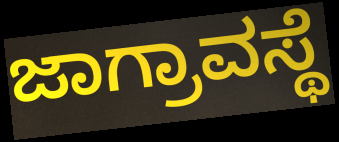
ಜಾಗ್ರಾವಸ್ಥೆ